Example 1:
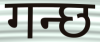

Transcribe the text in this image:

गन्छ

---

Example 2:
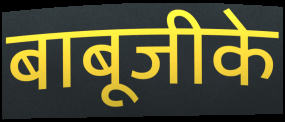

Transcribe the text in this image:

बाबूजीके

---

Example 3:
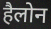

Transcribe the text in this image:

हैलोन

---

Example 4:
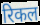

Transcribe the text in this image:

रिकल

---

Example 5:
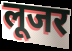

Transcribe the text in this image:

लूजर